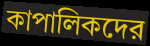
কাপালিকদের